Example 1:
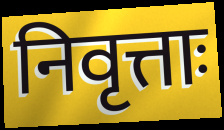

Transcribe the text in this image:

निवृत्ताः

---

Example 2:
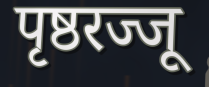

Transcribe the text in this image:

पृष्ठरज्जू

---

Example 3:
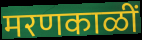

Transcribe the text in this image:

मरणकाळीं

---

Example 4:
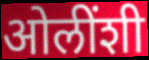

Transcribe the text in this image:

ओलींशी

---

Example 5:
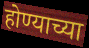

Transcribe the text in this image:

होण्याच्या